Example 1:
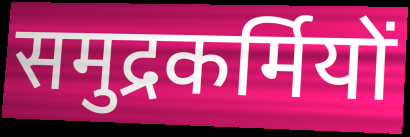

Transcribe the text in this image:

समुद्रकर्मियों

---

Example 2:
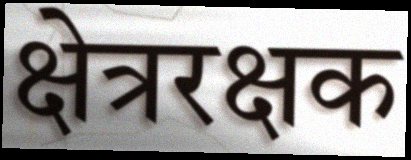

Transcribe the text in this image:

क्षेत्ररक्षक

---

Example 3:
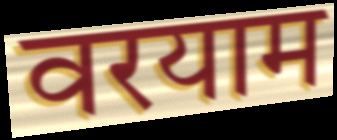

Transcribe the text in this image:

वरयाम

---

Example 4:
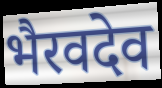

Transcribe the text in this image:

भैरवदेव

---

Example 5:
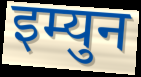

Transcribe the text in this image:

इम्‍युन